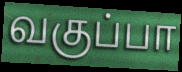
வகுப்பா